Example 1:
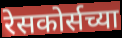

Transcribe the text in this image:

रेसकोर्सच्या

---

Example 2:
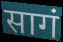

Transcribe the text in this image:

सागं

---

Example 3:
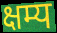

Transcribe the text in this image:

क्षम्य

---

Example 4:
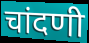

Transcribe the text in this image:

चांदणी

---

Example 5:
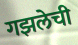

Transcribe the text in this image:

गझलेची